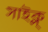
সাইক্ল্